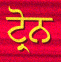
ਟ੍ਰੋਨ